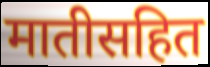
मातीसहित